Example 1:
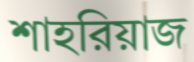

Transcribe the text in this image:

শাহরিয়াজ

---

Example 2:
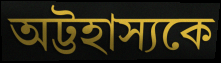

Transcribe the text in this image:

অট্টহাস্যকে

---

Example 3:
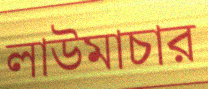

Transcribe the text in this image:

লাউমাচার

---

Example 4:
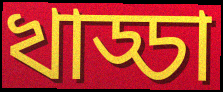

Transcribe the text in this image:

খাড্ডা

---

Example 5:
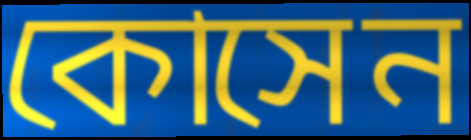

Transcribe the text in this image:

কোসেন